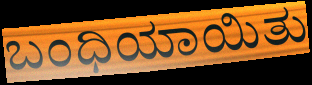
ಬಂಧಿಯಾಯಿತು